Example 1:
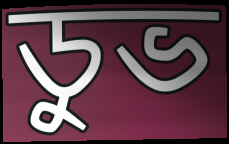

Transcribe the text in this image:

ডুভ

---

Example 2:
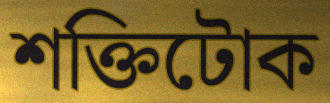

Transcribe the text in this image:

শক্তিটোক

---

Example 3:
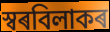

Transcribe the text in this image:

স্বৰবিলাকৰ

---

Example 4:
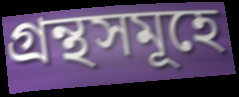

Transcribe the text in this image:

গ্ৰন্থসমূহে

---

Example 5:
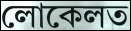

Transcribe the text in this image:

লোকেলত